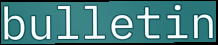
bulletin